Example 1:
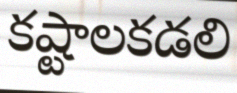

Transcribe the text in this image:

కష్టాలకడలి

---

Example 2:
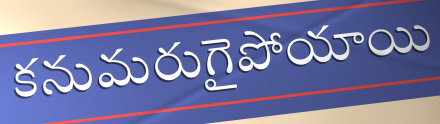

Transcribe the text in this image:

కనుమరుగైపోయాయి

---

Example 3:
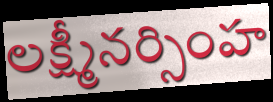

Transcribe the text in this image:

లక్ష్మీనర్సింహ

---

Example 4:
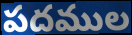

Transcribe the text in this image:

పదముల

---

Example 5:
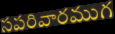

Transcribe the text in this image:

సపరివారముగ